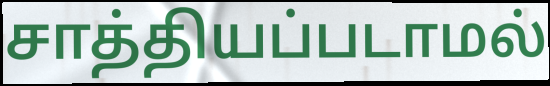
சாத்தியப்படாமல்